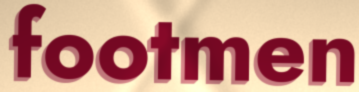
footmen